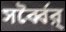
সর্ব্বৈর্